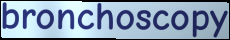
bronchoscopy